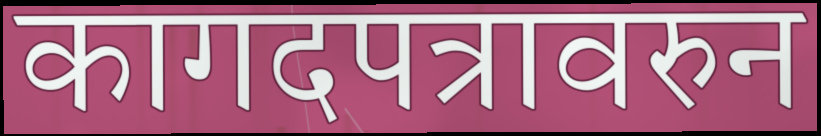
कागदपत्रावरुन